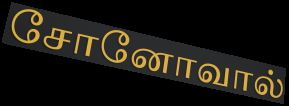
சோனோவால்